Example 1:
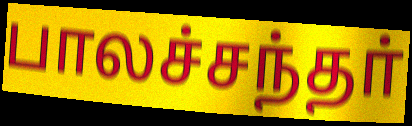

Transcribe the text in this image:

பாலச்சந்தர்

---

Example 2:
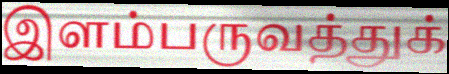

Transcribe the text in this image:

இளம்பருவத்துக்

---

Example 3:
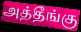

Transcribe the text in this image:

அத்தீங்கு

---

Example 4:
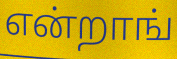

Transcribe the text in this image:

என்றாங்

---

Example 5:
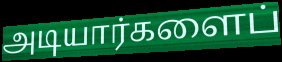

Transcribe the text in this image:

அடியார்களைப்